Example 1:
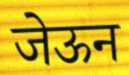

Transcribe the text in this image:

जेऊन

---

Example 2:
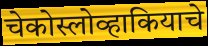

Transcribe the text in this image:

चेकोस्लोव्हाकियाचे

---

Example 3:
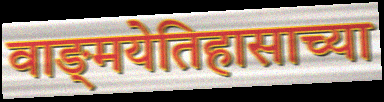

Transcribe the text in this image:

वाङ्‌मयेतिहासाच्या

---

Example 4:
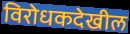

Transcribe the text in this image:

विरोधकदेखील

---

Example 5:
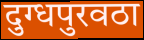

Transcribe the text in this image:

दुग्धपुरवठा